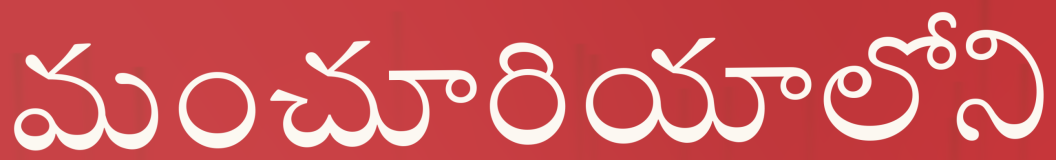
మంచూరియాలోని